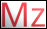
Mz